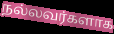
நல்லவர்களாக